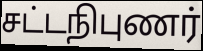
சட்டநிபுணர்